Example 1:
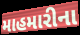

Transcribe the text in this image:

માહમારીના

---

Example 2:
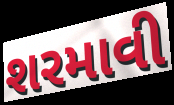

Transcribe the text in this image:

શરમાવી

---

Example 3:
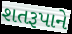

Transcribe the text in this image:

શતરૂપાને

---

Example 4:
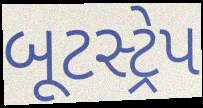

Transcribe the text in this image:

બૂટસ્ટ્રેપ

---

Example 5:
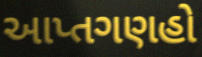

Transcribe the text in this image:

આપ્તગણહો